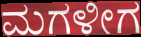
ಮಗಳೀಗ